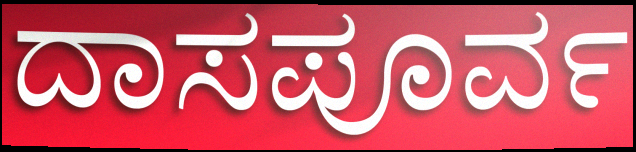
ದಾಸಪೂರ್ವ